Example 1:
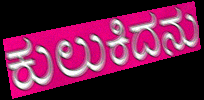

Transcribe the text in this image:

ಕುಲುಕಿದನು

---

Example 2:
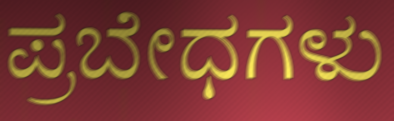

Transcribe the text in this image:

ಪ್ರಬೇಧಗಳು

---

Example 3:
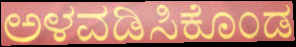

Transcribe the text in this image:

ಅಳವಡಿಸಿಕೊಂಡ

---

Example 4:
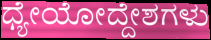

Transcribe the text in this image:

ಧ್ಯೇಯೋದ್ದೇಶಗಳು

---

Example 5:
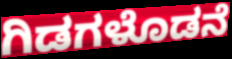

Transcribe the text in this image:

ಗಿಡಗಳೊಡನೆ